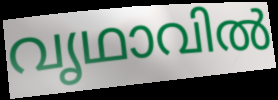
വൃഥാവിൽ